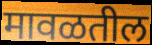
मावळतील